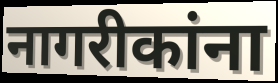
नागरीकांना